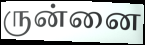
ருன்னை